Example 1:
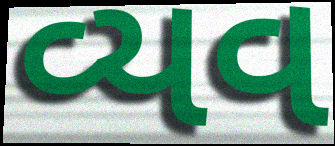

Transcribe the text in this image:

વ્યવ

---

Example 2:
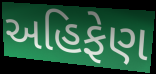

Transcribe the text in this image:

અહિફેણ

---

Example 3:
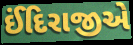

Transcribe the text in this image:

ઈંદિરાજીએ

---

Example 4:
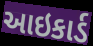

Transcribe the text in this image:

આઇકાર્ડ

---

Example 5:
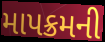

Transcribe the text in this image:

માપક્રમની